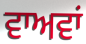
ਵਾਅਵਾਂ